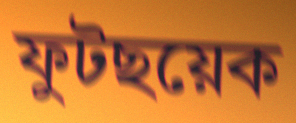
ফুটছয়েক